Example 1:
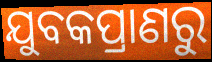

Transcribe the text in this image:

ଯୁବକପ୍ରାଣରୁ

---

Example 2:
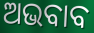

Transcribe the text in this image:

ଅଭବାବ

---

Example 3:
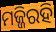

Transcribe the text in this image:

ମଜ୍ଜିରହି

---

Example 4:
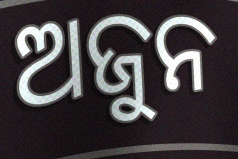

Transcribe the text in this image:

ଅଜୁନ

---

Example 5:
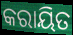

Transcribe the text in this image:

କରାୟିତ